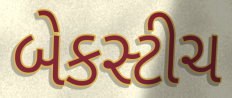
બેકસ્ટીચ